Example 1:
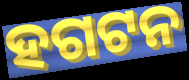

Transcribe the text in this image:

ହଗଟନ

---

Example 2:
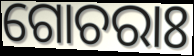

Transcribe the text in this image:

ଗୋଚରାଃ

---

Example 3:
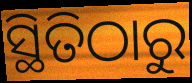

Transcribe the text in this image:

ସ୍ଥିତିଠାରୁ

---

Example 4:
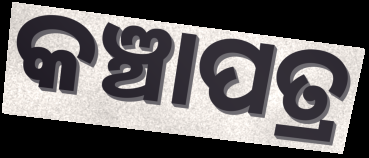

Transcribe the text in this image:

କଞ୍ଚାପତ୍ର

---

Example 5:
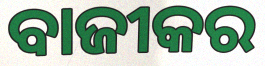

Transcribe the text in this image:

ବାଜୀକର